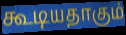
கூடியதாகும்